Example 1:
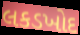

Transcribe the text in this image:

લકડખોદ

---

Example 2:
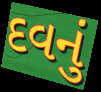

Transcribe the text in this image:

દવનું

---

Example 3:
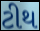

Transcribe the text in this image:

ટીથ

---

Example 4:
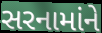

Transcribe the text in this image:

સરનામાંને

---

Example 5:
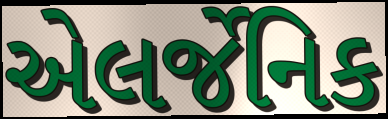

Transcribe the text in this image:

એલર્જેનિક